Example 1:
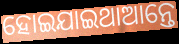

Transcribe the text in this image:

ହୋଇଯାଇଥାଆନ୍ତେ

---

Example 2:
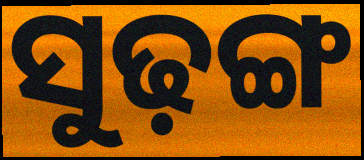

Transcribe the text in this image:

ସୁଢ଼ଙ୍ଗ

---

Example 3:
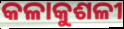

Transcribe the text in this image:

କଳାକୁଶଳୀ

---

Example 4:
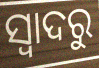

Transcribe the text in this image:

ସ୍ବାଦରୁ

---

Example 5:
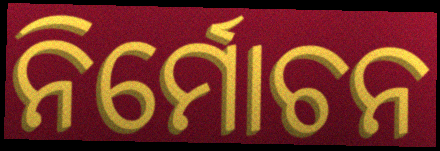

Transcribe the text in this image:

ନିର୍ମୋଚନ